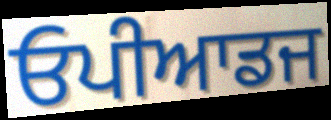
ਓਪੀਆਡਜ